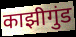
काझीगुंड